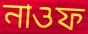
নাওফ